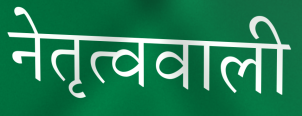
नेतृत्ववाली